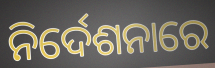
ନିର୍ଦେଶନାରେ